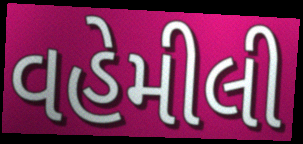
વહેમીલી